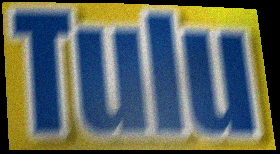
Tulu